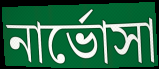
নার্ভোসা